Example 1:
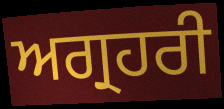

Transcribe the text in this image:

ਅਗ੍ਰਹਰੀ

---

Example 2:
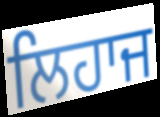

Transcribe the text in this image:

ਲਿਹਾਜ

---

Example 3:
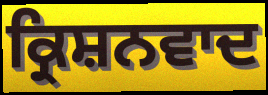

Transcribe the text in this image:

ਕ੍ਰਿਸ਼ਨਵਾਦ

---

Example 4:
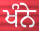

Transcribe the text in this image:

ਖੰਨੇ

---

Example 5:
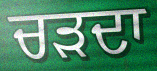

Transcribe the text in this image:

ਚੜਦਾ